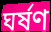
ঘৰ্ষণ